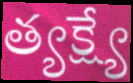
త్యక్ష్యే